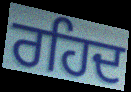
ਰਹਿਦ